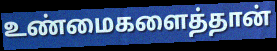
உண்மைகளைத்தான்